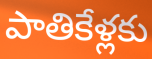
పాతికేళ్లకు